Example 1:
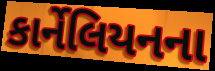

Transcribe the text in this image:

કાર્નેલિયનના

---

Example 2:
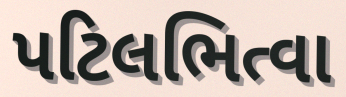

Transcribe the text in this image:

પટિલભિત્વા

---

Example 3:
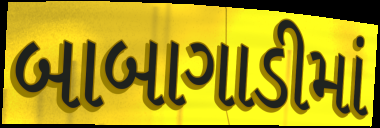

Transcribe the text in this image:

બાબાગાડીમાં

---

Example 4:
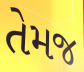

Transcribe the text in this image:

તેમજ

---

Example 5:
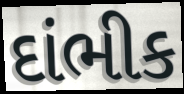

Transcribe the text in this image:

દાંભીક